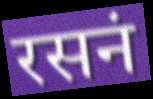
रसनं